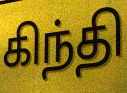
கிந்தி